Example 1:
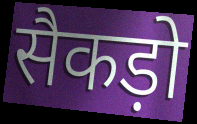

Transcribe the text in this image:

सैकड़ो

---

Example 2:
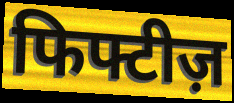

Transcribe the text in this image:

फिफ्टीज़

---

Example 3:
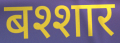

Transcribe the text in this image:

बश्शार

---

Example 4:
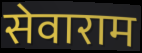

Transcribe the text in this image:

सेवाराम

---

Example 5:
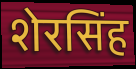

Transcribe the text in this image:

शेरसिंह